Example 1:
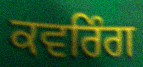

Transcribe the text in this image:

ਕਵਰਿੰਗ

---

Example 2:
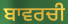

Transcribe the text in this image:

ਬਾਵਰਚੀ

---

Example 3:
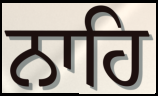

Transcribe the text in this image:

ਨਾਹਿ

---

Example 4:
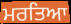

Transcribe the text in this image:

ਮਰਤਿਆ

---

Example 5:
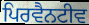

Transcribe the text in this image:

ਪਿਰਵੈਨਟੀਵ